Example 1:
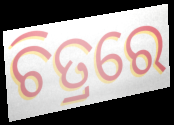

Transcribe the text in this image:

ଚିତ୍ରରେ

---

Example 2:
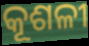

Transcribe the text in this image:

କୂଶଳୀ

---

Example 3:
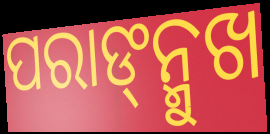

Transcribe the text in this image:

ପରାଙ୍‌ନ୍ମୁଖ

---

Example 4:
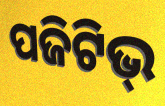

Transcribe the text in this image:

ପଜିଟିଭ୍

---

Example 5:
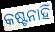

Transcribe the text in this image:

କଷ୍ଟନାହିଁ